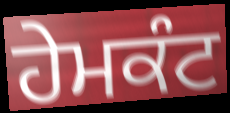
ਹੇਮਕੰਟ